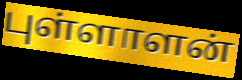
புள்ளாளன்